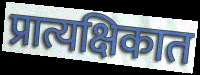
प्रात्यक्षिकात